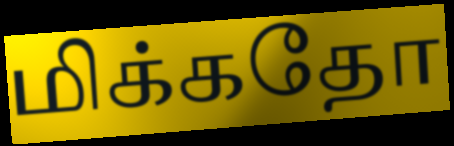
மிக்கதோ